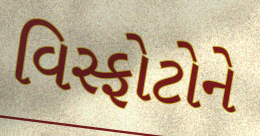
વિસ્ફોટોને